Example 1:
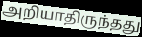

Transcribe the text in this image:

அறியாதிருந்தது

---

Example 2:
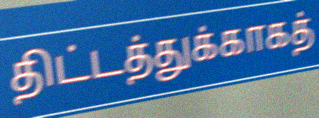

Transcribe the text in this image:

திட்டத்துக்காகத்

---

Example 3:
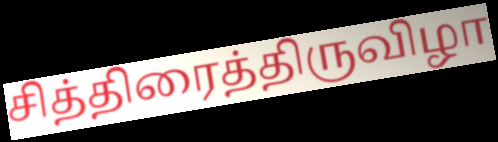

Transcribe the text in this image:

சித்திரைத்திருவிழா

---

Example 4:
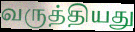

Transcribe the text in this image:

வருத்தியது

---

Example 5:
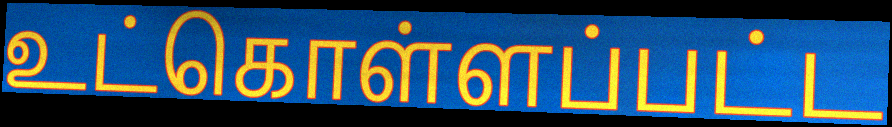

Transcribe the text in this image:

உட்கொள்ளப்பட்ட